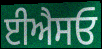
ਈਐਸਓ